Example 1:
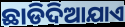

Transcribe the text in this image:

ଛାଡିଦିଆଯାଏ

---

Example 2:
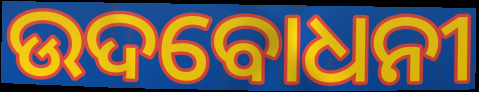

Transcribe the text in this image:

ଉଦବୋଧନୀ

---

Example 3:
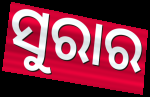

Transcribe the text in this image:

ସୁରାର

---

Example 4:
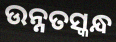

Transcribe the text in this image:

ଉନ୍ନତସ୍କନ୍ଧ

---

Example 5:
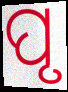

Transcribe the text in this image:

ପୃ